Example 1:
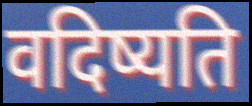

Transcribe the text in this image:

वदिष्यति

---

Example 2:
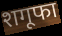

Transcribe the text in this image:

शगूफा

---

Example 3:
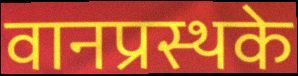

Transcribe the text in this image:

वानप्रस्थके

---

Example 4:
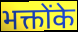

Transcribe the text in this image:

भक्तोंके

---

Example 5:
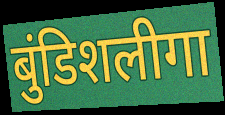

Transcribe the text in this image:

बुंडिशलीगा